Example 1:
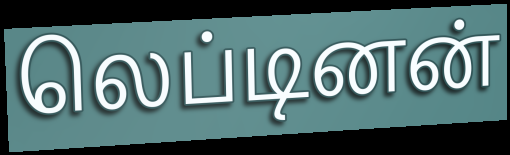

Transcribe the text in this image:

லெப்டினன்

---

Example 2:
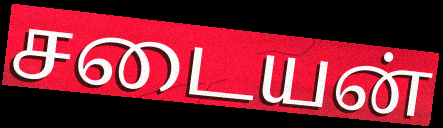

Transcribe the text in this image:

சடையன்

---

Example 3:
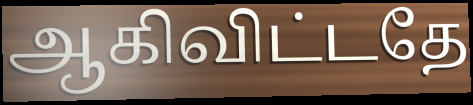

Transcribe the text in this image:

ஆகிவிட்டதே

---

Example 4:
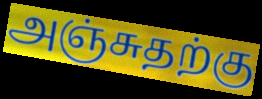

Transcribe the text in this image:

அஞ்சுதற்கு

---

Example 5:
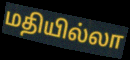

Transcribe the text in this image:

மதியில்லா